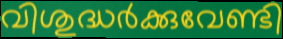
വിശുദ്ധർക്കുവേണ്ടി